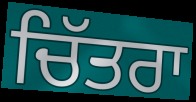
ਚਿੱਤਰਾ